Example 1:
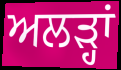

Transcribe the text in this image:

ਅਲੜ੍ਹਾਂ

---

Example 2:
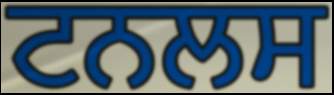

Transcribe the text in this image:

ਟਨਲਸ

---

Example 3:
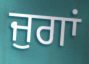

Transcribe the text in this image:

ਜੁਗਾਂ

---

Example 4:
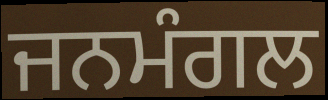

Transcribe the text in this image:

ਜਨਮੰਗਲ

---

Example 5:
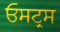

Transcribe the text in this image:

ਓਸਟ੍ਰਸ